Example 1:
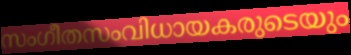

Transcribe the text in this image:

സംഗീതസംവിധായകരുടെയും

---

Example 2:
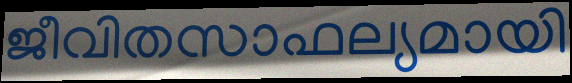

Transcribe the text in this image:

ജീവിതസാഫല്യമായി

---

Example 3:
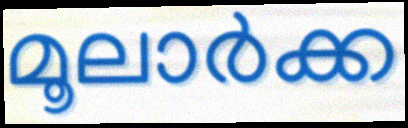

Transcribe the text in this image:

മൂലാർക്ക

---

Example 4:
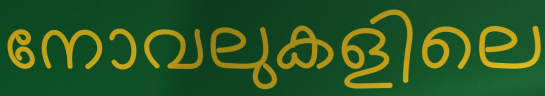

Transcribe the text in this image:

നോവലുകളിലെ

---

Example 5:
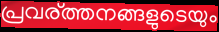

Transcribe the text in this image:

പ്രവര്ത്തനങ്ങളുടെയും